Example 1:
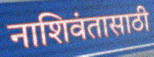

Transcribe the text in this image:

नाशिवंतासाठी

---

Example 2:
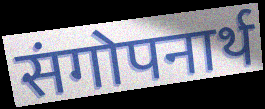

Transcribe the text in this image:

संगोपनार्थ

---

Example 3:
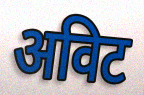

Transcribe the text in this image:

अविट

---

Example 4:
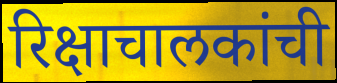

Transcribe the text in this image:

रिक्षाचालकांची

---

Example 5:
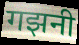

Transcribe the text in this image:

गझनी